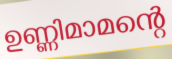
ഉണ്ണിമാമന്റെ